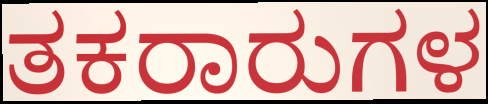
ತಕರಾರುಗಳ